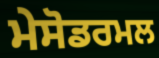
ਮੇਸੋਡਰਮਲ